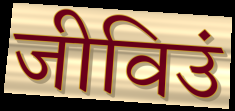
जीविउं